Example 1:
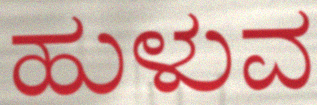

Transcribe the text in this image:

ಹುಳುವ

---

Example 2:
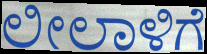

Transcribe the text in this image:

ಲೀಲಾಳಿಗೆ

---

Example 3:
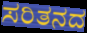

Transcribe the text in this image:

ಸರಿತನದ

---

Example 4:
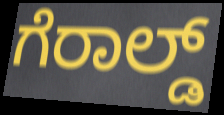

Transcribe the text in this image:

ಗೆರಾಲ್ಡ್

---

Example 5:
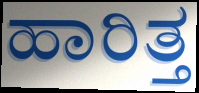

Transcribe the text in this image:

ಹಾರಿತ್ತ